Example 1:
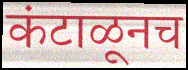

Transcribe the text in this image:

कंटाळूनच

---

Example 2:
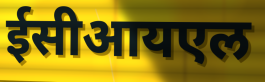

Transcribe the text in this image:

ईसीआयएल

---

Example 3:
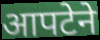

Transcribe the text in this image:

आपटेने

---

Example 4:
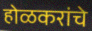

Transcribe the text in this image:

होळकरांचे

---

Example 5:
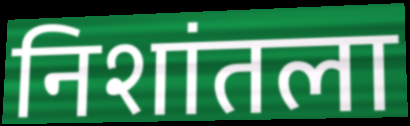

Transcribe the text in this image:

निशांतला